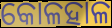
କୋଳହାଳ